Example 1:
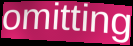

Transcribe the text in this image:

omitting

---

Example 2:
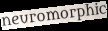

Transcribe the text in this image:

neuromorphic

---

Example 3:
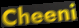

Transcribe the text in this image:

Cheeni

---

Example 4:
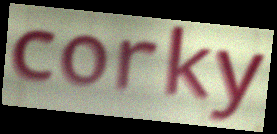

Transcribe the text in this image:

corky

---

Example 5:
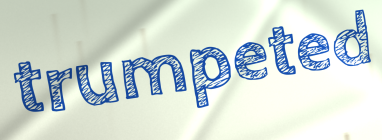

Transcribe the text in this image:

trumpeted